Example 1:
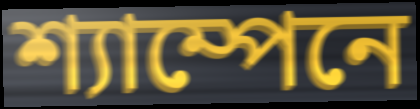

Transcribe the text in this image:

শ্যাম্পেনে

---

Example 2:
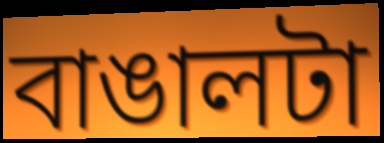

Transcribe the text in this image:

বাঙালটা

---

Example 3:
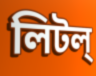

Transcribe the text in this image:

লিটল্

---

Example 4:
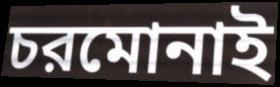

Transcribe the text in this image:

চরমোনাই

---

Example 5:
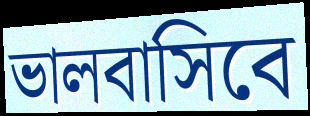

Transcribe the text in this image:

ভালবাসিবে